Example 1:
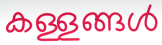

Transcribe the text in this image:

കള്ളങ്ങൾ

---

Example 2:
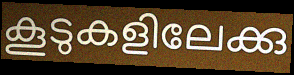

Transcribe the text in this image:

കൂടുകളിലേക്കു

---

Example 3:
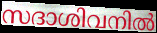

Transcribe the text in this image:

സദാശിവനിൽ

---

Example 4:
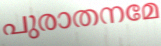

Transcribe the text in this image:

പുരാതനമേ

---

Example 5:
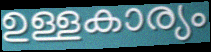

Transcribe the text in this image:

ഉള്ളകാര്യം